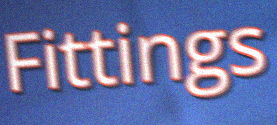
Fittings